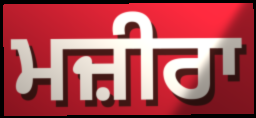
ਮਜ਼ੀਰਾ